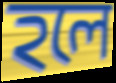
হলে